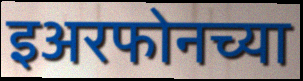
इअरफोनच्या